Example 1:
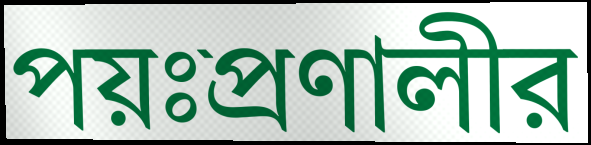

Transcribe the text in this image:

পয়ঃপ্রণালীর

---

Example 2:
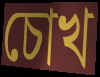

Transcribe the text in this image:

চোখ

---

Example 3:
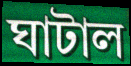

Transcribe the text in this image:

ঘাটাল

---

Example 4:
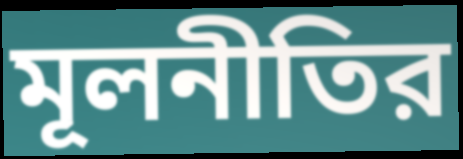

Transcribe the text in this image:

মূলনীতির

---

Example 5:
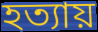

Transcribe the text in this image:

হত্যায়